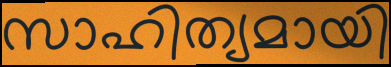
സാഹിത്യമായി